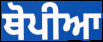
ਥੋਪੀਆ